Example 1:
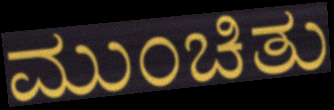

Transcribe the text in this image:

ಮುಂಚಿತು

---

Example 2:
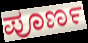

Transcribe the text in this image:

ಪೂರ್ಣ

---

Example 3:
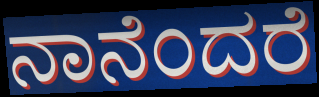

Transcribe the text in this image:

ನಾನೆಂದರೆ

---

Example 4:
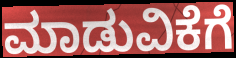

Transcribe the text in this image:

ಮಾಡುವಿಕೆಗೆ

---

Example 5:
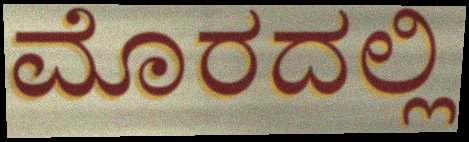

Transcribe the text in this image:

ಮೊರದಲ್ಲಿ